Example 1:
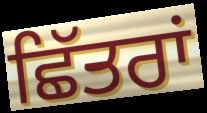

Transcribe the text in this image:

ਛਿੱਤਰਾਂ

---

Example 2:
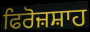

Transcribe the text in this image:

ਫਿਰੋਜ਼ਸ਼ਾਹ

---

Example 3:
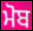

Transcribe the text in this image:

ਮੋਬ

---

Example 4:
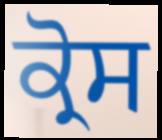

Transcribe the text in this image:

ਕ੍ਰੋਸ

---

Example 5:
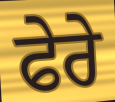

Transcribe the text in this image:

ਫੇਰੇ